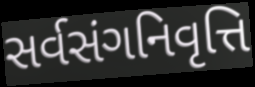
સર્વસંગનિવૃત્તિ